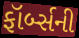
ફૉર્બ્સની